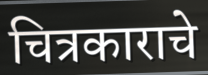
चित्रकाराचे